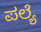
ಪಲ್ಯೆ